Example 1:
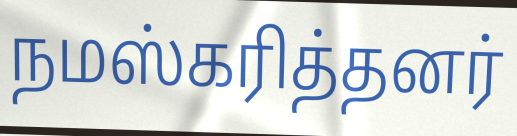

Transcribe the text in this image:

நமஸ்கரித்தனர்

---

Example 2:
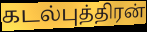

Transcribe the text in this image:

கடல்புத்திரன்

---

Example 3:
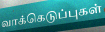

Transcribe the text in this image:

வாக்கெடுப்புகள்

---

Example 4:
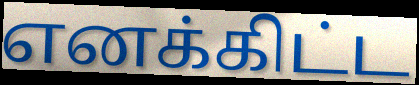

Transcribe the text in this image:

எனக்கிட்ட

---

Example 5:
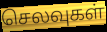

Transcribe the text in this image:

செலவுகள்